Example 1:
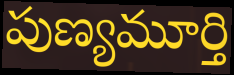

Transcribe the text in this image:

పుణ్యమూర్తి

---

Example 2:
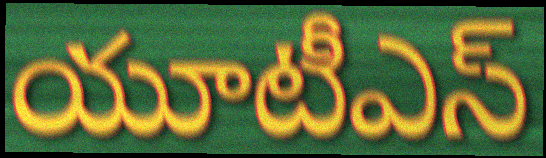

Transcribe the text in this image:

యూటీఎస్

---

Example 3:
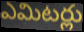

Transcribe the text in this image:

ఎమిటర్లు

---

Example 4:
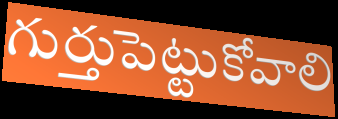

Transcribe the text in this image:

గుర్తుపెట్టుకోవాలి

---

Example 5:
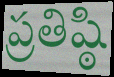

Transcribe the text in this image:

ప్రతిష్ఠి